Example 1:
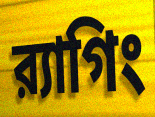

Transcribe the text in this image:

র‍্যাগিং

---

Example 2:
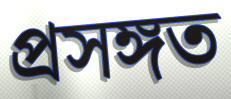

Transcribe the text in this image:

প্রসঙ্গত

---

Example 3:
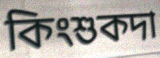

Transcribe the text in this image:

কিংশুকদা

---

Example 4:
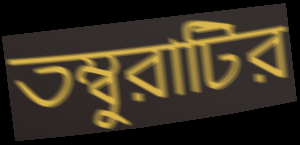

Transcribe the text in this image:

তম্বুরাটির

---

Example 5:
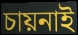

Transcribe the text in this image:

চায়নাই